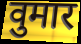
वुमार